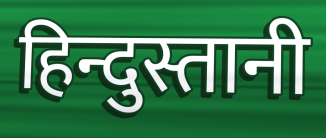
हिन्दुस्तानी